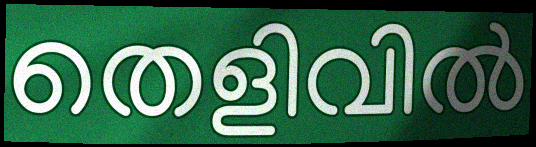
തെളിവിൽ